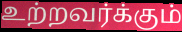
உற்றவர்க்கும்